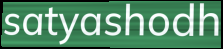
satyashodh